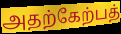
அதற்கேற்பத்